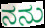
ನನು